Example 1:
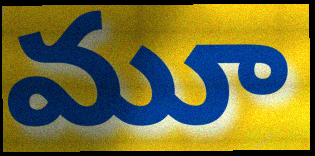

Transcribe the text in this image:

మూ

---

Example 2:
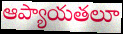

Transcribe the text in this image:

ఆప్యాయతలూ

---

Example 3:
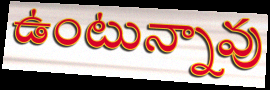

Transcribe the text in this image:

ఉంటున్నావు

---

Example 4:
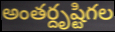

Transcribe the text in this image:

అంతర్దృష్టిగల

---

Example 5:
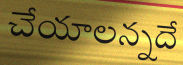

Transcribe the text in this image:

చేయాలన్నదే